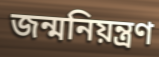
জন্মনিয়ন্ত্রণ